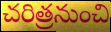
చరిత్రనుంచి